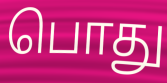
பொது